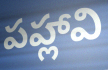
పహ్లావి